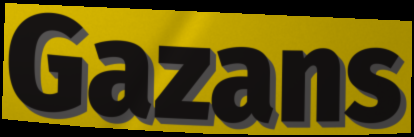
Gazans